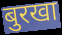
बुरखा